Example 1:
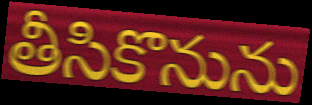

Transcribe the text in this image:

తీసికొనును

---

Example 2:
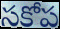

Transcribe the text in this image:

సకోప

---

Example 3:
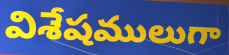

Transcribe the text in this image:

విశేషములుగా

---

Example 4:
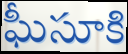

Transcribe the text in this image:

ఘీసూకి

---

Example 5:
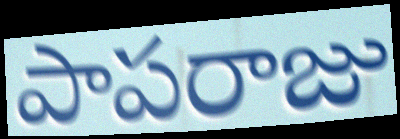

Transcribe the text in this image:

పాపరాజు